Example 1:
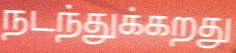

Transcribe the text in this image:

நடந்துக்கறது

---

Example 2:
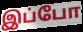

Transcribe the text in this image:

இப்போ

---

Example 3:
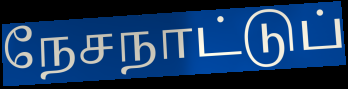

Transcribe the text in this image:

நேசநாட்டுப்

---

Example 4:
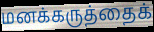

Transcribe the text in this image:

மனக்கருத்தைக்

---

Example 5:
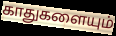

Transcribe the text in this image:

காதுகளையும்